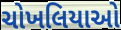
ચોખલિયાઓ